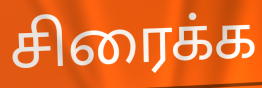
சிரைக்க